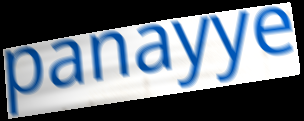
panayye